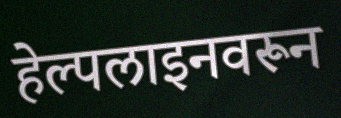
हेल्पलाइनवरून